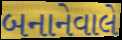
બનાનેવાલે